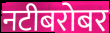
नटीबरोबर